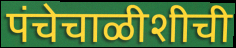
पंचेचाळीशीची